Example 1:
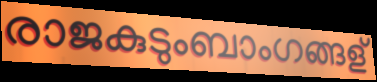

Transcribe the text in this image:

രാജകുടുംബാംഗങ്ങള്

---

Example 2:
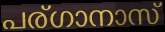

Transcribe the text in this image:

പര്ഗാനാസ്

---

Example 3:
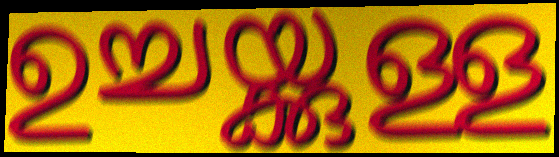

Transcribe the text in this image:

ഉച്ചയ്ക്കുള്ള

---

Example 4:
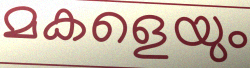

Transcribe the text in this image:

മകളെയും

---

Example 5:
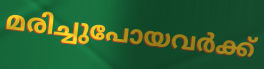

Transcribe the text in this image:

മരിച്ചുപോയവർക്ക്